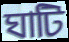
ঘাটি